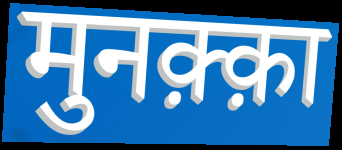
मुनक़्क़ा